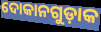
ଦୋକାନଗୁଡ଼ାକ